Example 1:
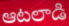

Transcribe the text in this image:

ఆటలాడి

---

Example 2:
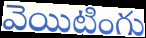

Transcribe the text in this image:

వెయిటింగు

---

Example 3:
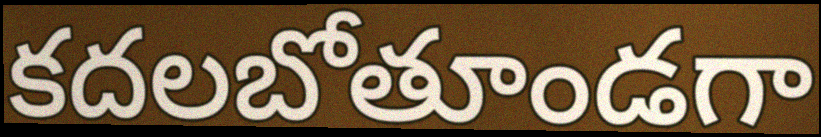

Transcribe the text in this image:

కదలబోతూండగా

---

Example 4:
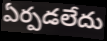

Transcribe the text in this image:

ఏర్పడలేదు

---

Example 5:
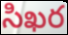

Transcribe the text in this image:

సిఖర